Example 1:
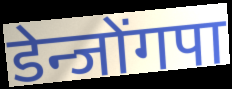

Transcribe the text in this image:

डेन्जोंगपा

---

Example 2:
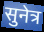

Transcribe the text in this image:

सुनेत्र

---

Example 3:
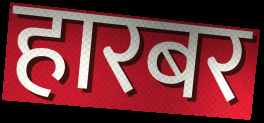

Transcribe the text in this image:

हारबर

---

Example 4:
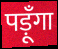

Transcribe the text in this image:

पड़ूँगा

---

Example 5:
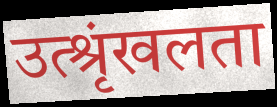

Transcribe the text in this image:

उत्श्रृंखलता